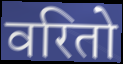
वरितो